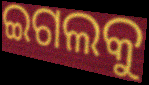
ଇଗଲକୁ